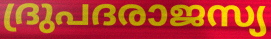
ദ്രുപദരാജസ്യ